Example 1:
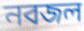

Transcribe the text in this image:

নবজল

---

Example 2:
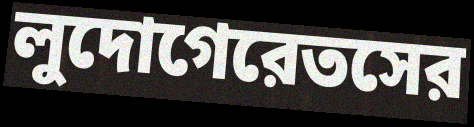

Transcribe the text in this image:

লুদোগেরেতসের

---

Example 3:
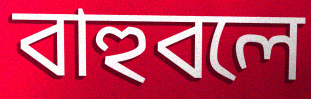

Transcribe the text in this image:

বাহুবলে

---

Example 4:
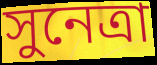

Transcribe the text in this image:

সুনেত্রা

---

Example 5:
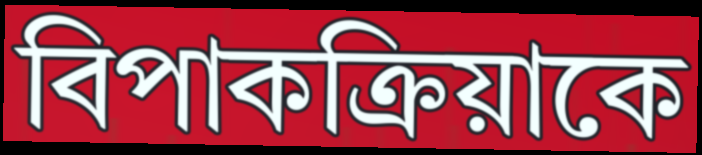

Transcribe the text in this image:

বিপাকক্রিয়াকে